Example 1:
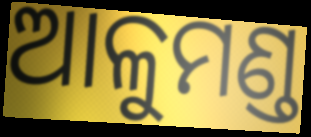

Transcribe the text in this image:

ଆଳୁମଣ୍ଡ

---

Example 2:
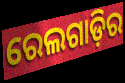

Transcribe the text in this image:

ରେଲଗାଡ଼ିର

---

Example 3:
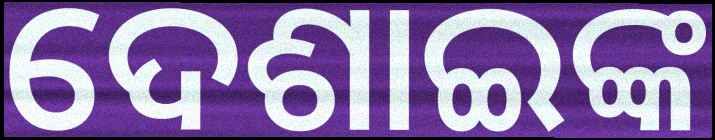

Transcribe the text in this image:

ଦେଶାଇଙ୍କ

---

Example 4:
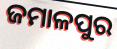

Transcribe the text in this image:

ଜମାଳପୁର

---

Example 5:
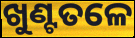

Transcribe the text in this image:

ଖୁଣ୍ଟତଳେ